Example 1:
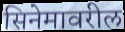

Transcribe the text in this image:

सिनेमावरील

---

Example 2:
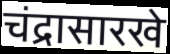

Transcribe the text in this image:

चंद्रासारखे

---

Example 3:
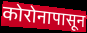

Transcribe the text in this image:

कोरोनापासून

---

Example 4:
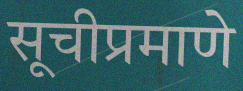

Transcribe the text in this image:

सूचीप्रमाणे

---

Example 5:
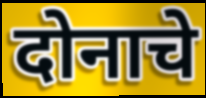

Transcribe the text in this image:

दोनाचे